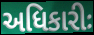
અધિકારીઃ